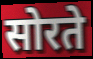
सोरते